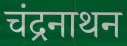
चंद्रनाथन